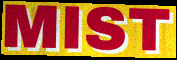
MIST